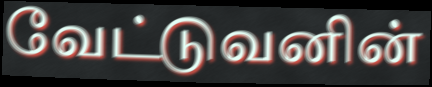
வேட்டுவனின்